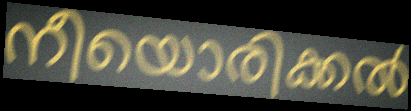
നീയൊരിക്കൽ